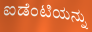
ಐಡೆಂಟಿಯನ್ನು